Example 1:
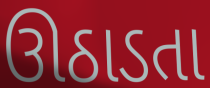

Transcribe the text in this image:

ઊઠાડતા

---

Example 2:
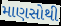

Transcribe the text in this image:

માણસોથી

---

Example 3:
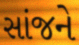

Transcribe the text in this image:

સાંજને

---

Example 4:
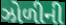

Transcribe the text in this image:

ઝોળીની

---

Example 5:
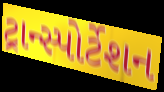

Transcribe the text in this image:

ટ્રાન્સ્પોર્ટેશન